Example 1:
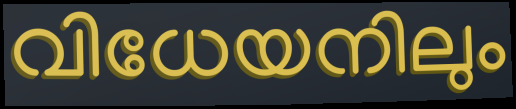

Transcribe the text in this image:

വിധേയനിലും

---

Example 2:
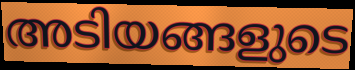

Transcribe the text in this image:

അടിയങ്ങളുടെ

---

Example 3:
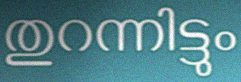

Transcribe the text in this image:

തുറന്നിട്ടും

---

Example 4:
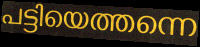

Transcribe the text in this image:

പട്ടിയെത്തന്നെ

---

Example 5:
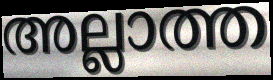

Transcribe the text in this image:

അല്ലാത്ത